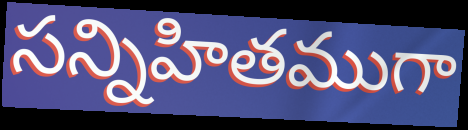
సన్నిహితముగా